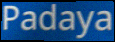
Padaya